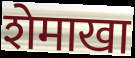
शेमाखा